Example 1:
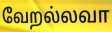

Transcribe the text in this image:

வேறல்லவா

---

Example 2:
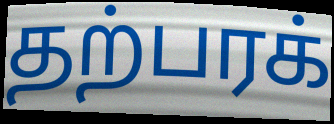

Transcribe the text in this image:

தற்பரக்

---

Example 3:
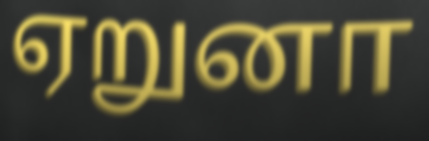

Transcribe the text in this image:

ஏறுனா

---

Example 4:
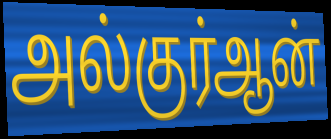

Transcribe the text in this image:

அல்குர்ஆன்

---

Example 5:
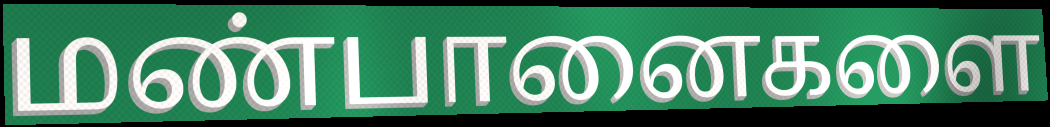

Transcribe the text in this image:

மண்பானைகளை